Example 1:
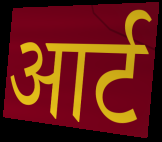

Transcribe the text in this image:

आर्ट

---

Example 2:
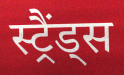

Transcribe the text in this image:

स्ट्रैंड्स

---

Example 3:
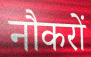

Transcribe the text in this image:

नौकरों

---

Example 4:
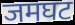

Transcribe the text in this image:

जमघट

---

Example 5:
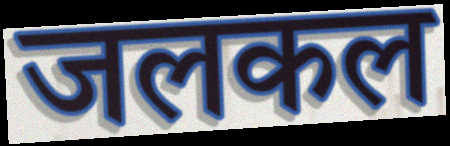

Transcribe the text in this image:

जलकल